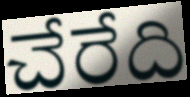
చేరేది